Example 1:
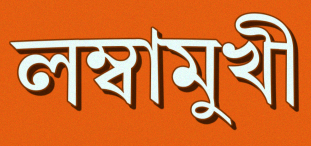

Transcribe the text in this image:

লম্বামুখী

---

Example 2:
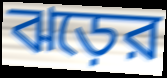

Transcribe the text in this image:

ঝড়ের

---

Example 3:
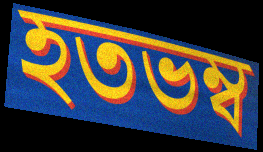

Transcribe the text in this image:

হতভম্ব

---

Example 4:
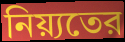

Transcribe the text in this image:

নিয়্যতের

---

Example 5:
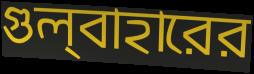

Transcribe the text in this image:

গুল্‌বাহারের